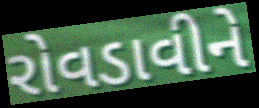
રોવડાવીને